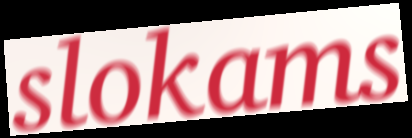
slokams